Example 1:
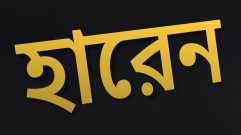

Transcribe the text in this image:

হারেন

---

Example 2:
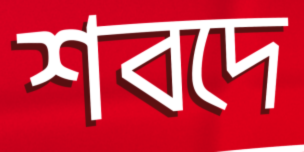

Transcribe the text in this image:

শবদে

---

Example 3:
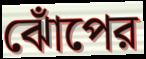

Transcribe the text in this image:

ঝোঁপের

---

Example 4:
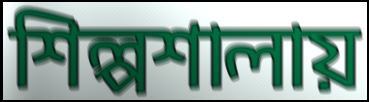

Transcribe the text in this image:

শিল্পশালায়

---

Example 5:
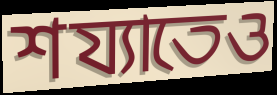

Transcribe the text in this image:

শয্যাতেও